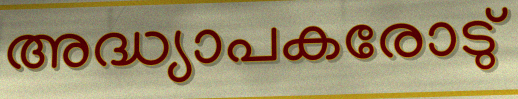
അദ്ധ്യാപകരോടു്